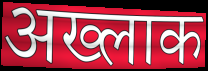
अख्लाक